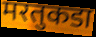
मरतुकडा